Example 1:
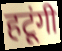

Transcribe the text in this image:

हटूंगी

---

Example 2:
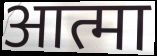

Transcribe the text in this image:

आत्‍मा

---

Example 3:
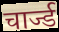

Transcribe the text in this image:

चार्ज्ड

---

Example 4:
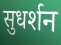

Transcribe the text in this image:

सुधर्शन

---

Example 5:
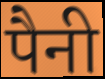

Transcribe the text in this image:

पैनी